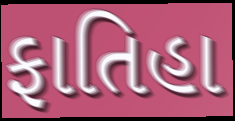
ફાતિહા